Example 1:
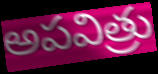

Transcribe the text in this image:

అపవిత్రు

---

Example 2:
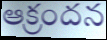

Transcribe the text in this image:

ఆక్రందన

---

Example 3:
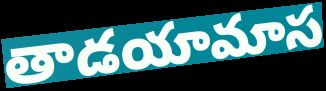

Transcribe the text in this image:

తాడయామాస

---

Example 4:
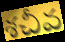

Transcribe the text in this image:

శచీవ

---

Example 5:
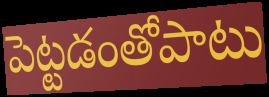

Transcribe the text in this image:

పెట్టడంతోపాటు